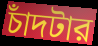
চাঁদটার